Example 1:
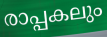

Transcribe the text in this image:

രാപ്പകലും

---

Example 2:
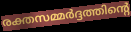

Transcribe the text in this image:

രക്തസമ്മർദ്ദത്തിന്റെ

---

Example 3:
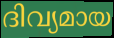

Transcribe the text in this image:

ദിവ്യമായ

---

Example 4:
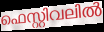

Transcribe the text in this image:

ഫെസ്റ്റിവലിൽ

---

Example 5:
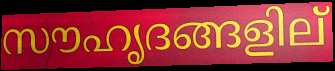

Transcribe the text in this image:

സൗഹൃദങ്ങളില്